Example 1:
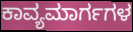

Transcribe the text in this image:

ಕಾವ್ಯಮಾರ್ಗಗಳ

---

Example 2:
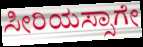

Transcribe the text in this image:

ಸೀರಿಯಸ್ಸಾಗೇ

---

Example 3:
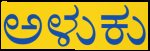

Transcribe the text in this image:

ಅಳುಕು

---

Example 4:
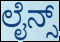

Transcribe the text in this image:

ಲೈನ್ಸ್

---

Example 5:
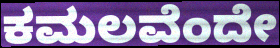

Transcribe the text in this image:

ಕಮಲವೆಂದೇ